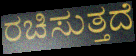
ರಚಿಸುತ್ತದೆ